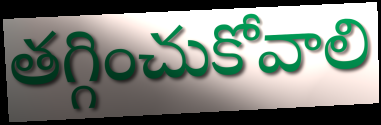
తగ్గించుకోవాలి